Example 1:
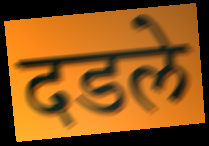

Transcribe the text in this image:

दडले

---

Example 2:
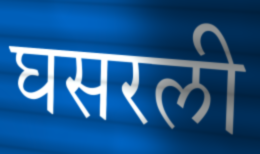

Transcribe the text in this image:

घसरली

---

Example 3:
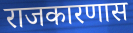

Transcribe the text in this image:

राजकारणास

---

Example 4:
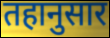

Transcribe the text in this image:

तहानुसार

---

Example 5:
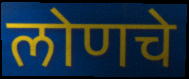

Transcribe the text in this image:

लोणचे